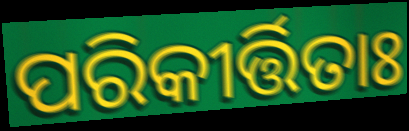
ପରିକୀର୍ତ୍ତିତାଃ